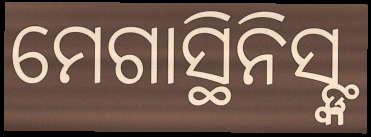
ମେଗାସ୍ଥିନିସ୍ଙ୍କ